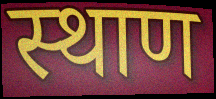
स्थाण